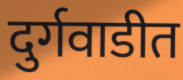
दुर्गवाडीत